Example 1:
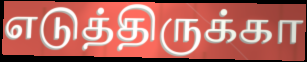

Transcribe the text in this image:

எடுத்திருக்கா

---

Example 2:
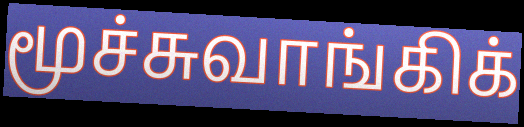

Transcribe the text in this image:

மூச்சுவாங்கிக்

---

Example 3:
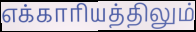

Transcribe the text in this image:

எக்காரியத்திலும்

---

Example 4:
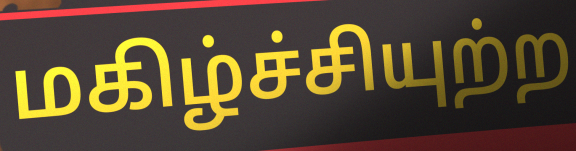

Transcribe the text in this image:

மகிழ்ச்சியுற்ற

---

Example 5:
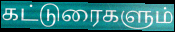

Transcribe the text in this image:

கட்டுரைகளும்